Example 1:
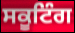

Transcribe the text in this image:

ਸਕੂਟਿੰਗ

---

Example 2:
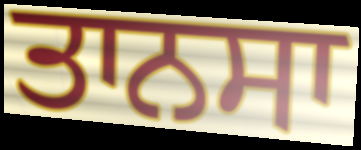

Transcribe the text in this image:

ਤਾਨਸਾ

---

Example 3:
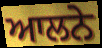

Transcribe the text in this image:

ਆਲਨੇ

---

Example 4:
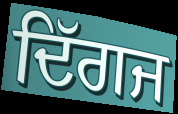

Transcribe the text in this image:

ਦਿੱਗਜ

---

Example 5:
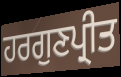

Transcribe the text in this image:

ਹਰਗੁਣਪ੍ਰੀਤ